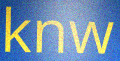
knw